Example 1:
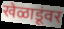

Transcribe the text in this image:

खेळाडूंवर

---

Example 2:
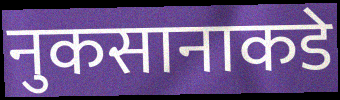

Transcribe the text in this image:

नुकसानाकडे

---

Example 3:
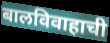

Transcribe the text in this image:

बालविवाहाची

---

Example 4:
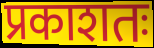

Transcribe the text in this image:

प्रकाशतः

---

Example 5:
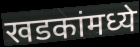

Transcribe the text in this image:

खडकांमध्ये